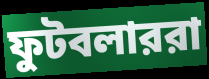
ফুটবলাররা